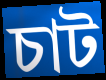
চাট